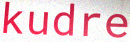
kudre